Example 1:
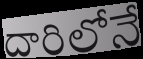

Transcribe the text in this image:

దారిలోనే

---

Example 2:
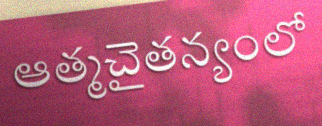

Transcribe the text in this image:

ఆత్మచైతన్యంలో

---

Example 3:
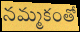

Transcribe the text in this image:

నమ్మకంతో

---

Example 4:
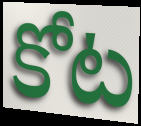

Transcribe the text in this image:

కోట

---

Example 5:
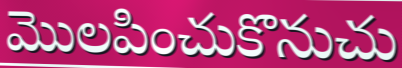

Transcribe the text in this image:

మొలపించుకొనుచు